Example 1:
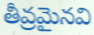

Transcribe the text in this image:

తీవ్రమైనవి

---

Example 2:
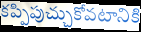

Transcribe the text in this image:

కప్పిపుచ్చుకోవటానికి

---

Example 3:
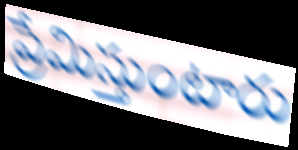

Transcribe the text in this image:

ప్రేమిస్తుంటారు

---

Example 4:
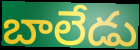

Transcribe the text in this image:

బాలేడు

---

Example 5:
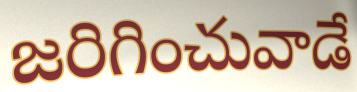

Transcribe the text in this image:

జరిగించువాడే